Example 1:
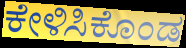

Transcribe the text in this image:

ಕೇಳಿಸಿಕೊಂಡ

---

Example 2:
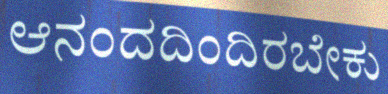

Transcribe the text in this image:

ಆನಂದದಿಂದಿರಬೇಕು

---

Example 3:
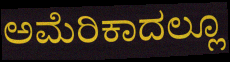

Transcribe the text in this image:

ಅಮೆರಿಕಾದಲ್ಲೂ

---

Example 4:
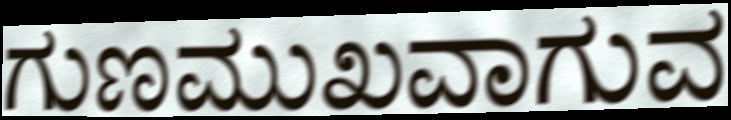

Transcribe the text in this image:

ಗುಣಮುಖವಾಗುವ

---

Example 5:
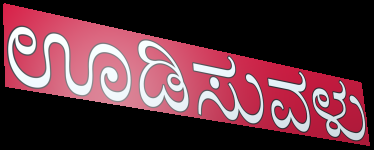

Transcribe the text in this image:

ಊಡಿಸುವಳು